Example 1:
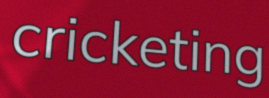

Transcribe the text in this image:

cricketing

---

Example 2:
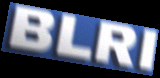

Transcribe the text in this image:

BLRI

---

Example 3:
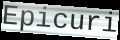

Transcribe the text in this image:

Epicuri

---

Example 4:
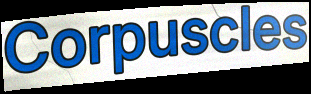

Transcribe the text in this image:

Corpuscles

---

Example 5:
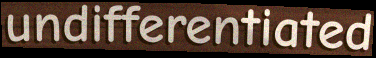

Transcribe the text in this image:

undifferentiated